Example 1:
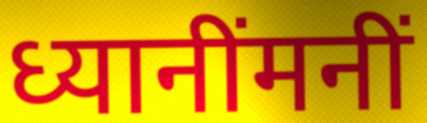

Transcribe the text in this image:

ध्यानींमनीं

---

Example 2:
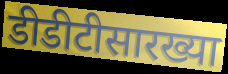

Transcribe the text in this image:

डीडीटीसारख्या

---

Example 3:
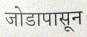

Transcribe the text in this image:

जोडापासून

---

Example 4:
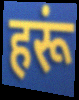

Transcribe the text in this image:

हरूं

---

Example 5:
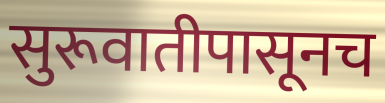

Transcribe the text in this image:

सुरूवातीपासूनच